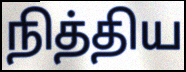
நித்திய